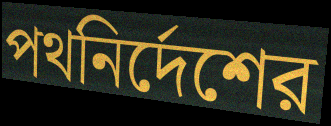
পথনির্দেশের